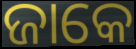
ଜାକେ